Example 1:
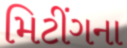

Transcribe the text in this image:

મિટીંગના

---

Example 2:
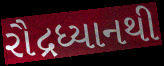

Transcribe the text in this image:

રૌદ્રધ્યાનથી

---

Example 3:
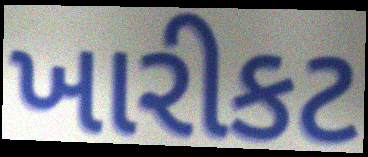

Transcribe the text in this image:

ખારીકટ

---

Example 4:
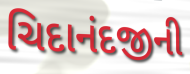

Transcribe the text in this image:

ચિદાનંદજીની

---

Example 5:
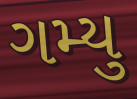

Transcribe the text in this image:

ગમ્યુ